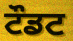
ਟੌਡਟ